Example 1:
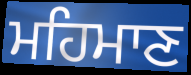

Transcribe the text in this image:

ਮਹਿਮਾਣ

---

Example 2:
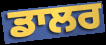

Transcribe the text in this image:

ਡਾਲਰ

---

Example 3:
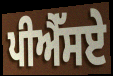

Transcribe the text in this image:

ਪੀਐੱਸਏ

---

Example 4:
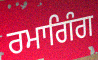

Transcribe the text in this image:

ਰਮਾਗਿੰਗ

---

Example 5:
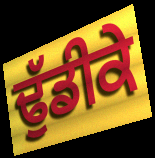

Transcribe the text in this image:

ਢੁੱਡੀਕੇ